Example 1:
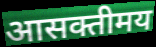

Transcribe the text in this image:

आसक्तीमय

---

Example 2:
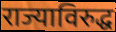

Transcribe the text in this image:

राज्याविरुद्ध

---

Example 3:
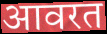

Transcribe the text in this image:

आवरत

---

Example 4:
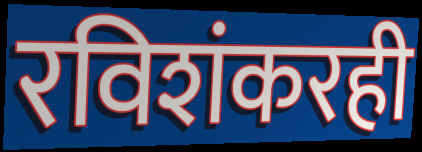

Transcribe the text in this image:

रविशंकरही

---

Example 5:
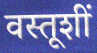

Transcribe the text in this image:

वस्तूशीं